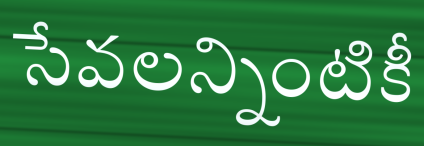
సేవలన్నింటికీ